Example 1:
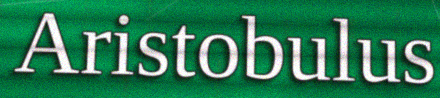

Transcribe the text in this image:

Aristobulus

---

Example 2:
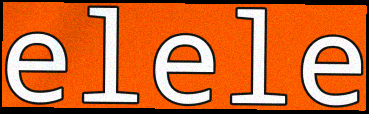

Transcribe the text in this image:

elele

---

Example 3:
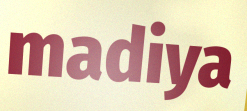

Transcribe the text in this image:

madiya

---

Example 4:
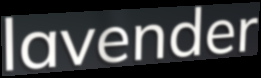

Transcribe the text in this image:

lavender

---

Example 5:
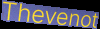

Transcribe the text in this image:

Thevenot